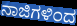
ನಾಜಿಗಳಿಂದ